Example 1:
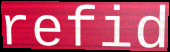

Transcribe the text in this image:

refid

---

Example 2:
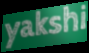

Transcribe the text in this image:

yakshi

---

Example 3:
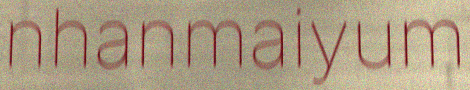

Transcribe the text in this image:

nhanmaiyum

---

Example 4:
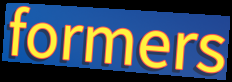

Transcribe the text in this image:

formers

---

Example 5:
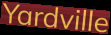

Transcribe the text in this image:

Yardville